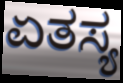
ಏತಸ್ಯ